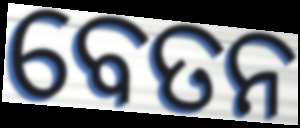
ବେତନ